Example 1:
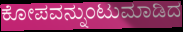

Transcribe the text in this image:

ಕೋಪವನ್ನುಂಟುಮಾಡಿದ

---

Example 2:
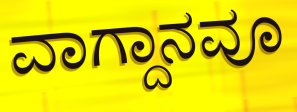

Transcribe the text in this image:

ವಾಗ್ದಾನವೂ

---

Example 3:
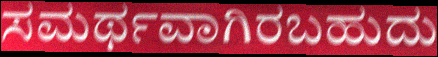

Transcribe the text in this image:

ಸಮರ್ಥವಾಗಿರಬಹುದು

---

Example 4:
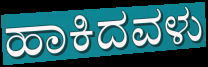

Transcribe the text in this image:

ಹಾಕಿದವಳು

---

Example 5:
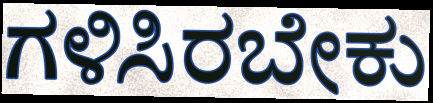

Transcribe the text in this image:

ಗಳಿಸಿರಬೇಕು